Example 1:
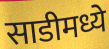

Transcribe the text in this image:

साडीमध्ये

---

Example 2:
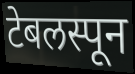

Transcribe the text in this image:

टेबलस्पून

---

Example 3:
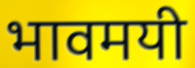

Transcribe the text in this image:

भावमयी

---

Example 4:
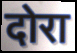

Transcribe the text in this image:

दोरा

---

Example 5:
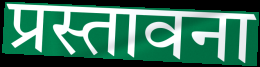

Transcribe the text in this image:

प्रस्तावना